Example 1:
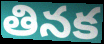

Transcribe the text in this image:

తినక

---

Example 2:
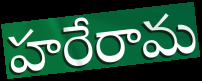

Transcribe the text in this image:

హరేరామ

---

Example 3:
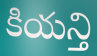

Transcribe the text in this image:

కియన్తి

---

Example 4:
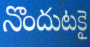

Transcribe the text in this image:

నొందుటకై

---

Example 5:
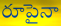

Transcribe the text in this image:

రూపైనా